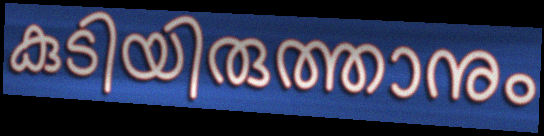
കുടിയിരുത്താനും